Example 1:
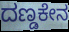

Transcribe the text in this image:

ದಣ್ಡಕೇನ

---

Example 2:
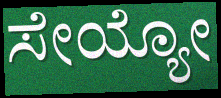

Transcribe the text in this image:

ಸೇಯ್ಯೋ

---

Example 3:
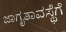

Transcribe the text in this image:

ಜಾಗೃತಾವಸ್ಥೆಗೆ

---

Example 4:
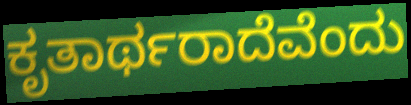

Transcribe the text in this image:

ಕೃತಾರ್ಥರಾದೆವೆಂದು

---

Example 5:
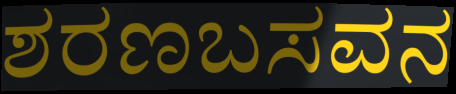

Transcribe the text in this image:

ಶರಣಬಸವನ